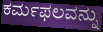
ಕರ್ಮಫಲವನ್ನು